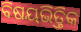
ବିଷୟଭିତ୍ତିକ